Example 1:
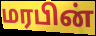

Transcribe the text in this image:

மரபின்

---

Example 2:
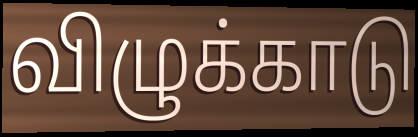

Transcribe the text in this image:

விழுக்காடு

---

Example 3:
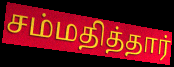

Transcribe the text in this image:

சம்மதித்தார்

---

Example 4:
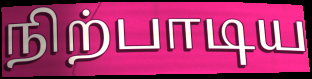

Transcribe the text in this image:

நிற்பாடிய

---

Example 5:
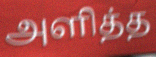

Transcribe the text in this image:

அளித்த